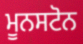
ਮੂਨਸਟੋਨ